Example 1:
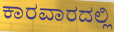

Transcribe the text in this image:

ಕಾರವಾರದಲ್ಲಿ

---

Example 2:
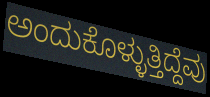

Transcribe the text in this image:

ಅಂದುಕೊಳ್ಳುತ್ತಿದ್ದೆವು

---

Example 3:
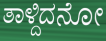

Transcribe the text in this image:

ತಾಳ್ದಿದನೋ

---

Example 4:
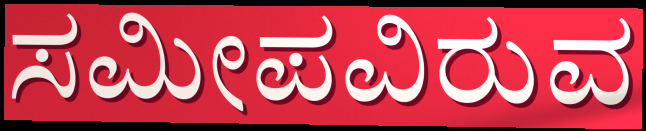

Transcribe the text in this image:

ಸಮೀಪವಿರುವ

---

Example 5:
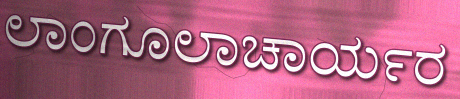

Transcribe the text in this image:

ಲಾಂಗೂಲಾಚಾರ್ಯರ